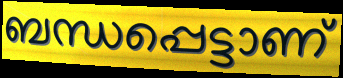
ബന്ധപ്പെട്ടാണ്